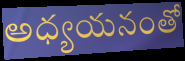
అధ్యయనంతో